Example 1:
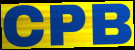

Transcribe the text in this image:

CPB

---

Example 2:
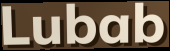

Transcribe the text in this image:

Lubab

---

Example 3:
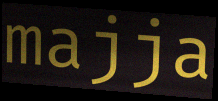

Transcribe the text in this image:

majja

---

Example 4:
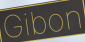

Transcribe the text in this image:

Gibon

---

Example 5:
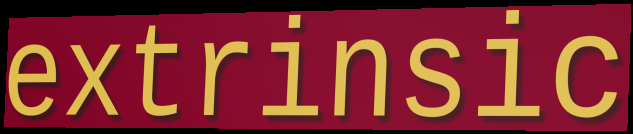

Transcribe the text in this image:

extrinsic